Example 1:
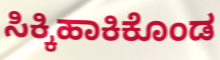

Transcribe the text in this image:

ಸಿಕ್ಕಿಹಾಕಿಕೊಂಡ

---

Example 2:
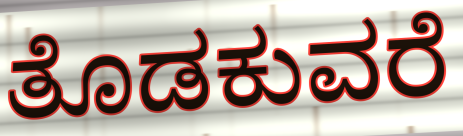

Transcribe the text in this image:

ತೊಡಕುವರೆ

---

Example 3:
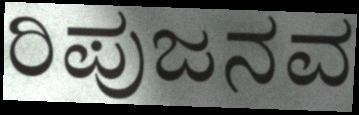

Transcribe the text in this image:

ರಿಪುಜನವ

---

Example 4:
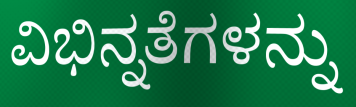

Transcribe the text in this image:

ವಿಭಿನ್ನತೆಗಳನ್ನು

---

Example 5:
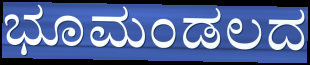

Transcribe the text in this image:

ಭೂಮಂಡಲದ